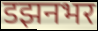
डझनभर